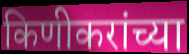
किणीकरांच्या